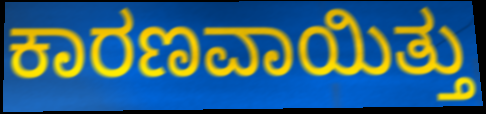
ಕಾರಣವಾಯಿತ್ತು